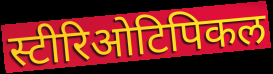
स्टीरिओटिपिकल